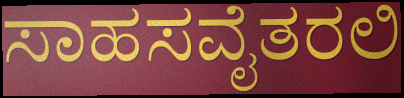
ಸಾಹಸವೈತರಲಿ